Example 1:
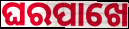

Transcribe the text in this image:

ଘରପାଖେ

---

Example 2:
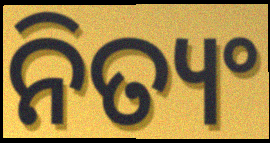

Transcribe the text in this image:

ନିତ୍ୟଂ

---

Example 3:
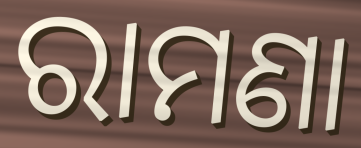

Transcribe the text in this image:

ରାମଣା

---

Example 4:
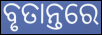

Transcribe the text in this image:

ବୃତାନ୍ତରେ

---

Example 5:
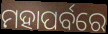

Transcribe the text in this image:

ମହାପର୍ବରେ